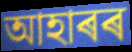
আহাৰৰ